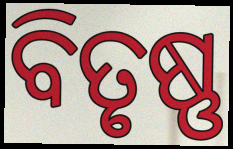
ବିତୃଷ୍ଣ